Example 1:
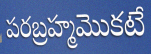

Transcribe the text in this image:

పరబ్రహ్మమొకటే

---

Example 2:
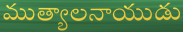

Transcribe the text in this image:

ముత్యాలనాయుడు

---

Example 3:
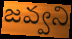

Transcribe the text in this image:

జవ్వని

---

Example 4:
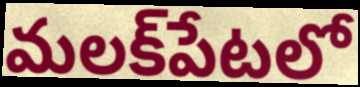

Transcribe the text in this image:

మలక్‌పేటలో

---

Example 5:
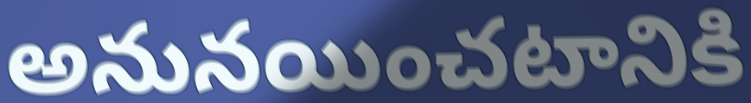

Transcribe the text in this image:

అనునయించటానికి